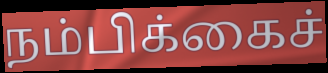
நம்பிக்கைச்